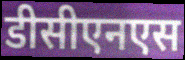
डीसीएनएस